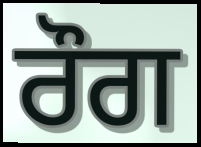
ਰੌਗ